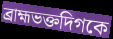
ব্রাহ্মভক্তদিগকে